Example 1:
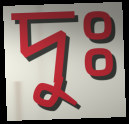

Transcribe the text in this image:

দুঃ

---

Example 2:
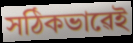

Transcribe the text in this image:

সঠিকভাৱেই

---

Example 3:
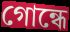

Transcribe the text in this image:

গোন্ধে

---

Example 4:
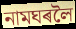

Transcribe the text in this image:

নামঘৰলৈ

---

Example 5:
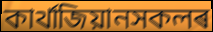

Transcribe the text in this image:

কাৰ্থাজিয়ানসকলৰ